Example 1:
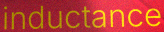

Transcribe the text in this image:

inductance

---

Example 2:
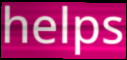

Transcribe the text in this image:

helps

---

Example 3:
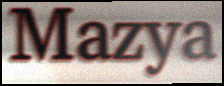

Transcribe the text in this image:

Mazya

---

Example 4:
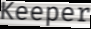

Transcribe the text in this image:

Keeper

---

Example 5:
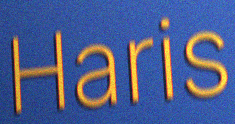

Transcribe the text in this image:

Haris